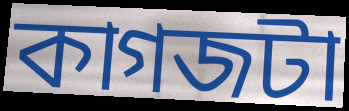
কাগজটা